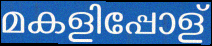
മകളിപ്പോള്